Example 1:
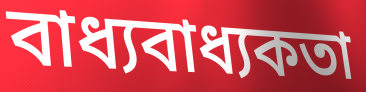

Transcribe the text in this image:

বাধ্যবাধ্যকতা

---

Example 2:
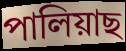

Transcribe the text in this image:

পালিয়াছ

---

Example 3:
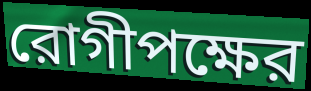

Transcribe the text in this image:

রোগীপক্ষের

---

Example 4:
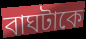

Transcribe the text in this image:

বাঘটাকে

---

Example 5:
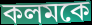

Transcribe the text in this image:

কলমকে